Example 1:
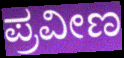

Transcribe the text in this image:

ಪ್ರವೀಣ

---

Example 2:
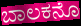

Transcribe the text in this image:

ಬಾಲಕನೊ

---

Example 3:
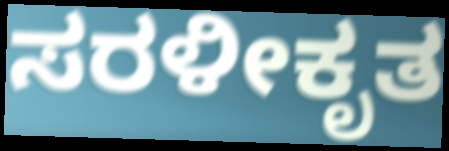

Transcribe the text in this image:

ಸರಳೀಕೃತ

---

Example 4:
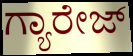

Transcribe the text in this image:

ಗ್ಯಾರೇಜ್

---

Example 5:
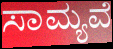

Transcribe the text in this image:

ಸಾಮ್ಯವೆ